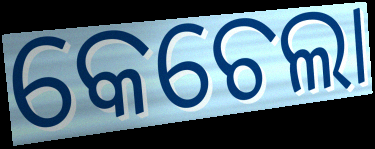
କେଚେଲା